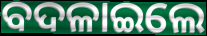
ବଦଳାଇଲେ